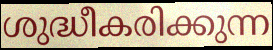
ശുദ്ധീകരിക്കുന്ന